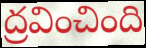
ద్రవించింది